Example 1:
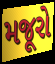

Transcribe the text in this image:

મજૂરો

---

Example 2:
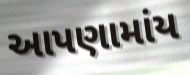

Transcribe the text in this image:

આપણામાંય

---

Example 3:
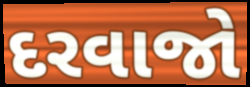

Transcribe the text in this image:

દરવાજો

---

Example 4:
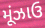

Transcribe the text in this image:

મૂંઝાઉ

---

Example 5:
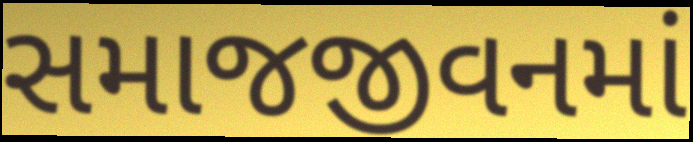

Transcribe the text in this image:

સમાજજીવનમાં